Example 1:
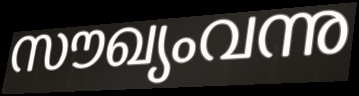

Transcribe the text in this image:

സൗഖ്യംവന്നു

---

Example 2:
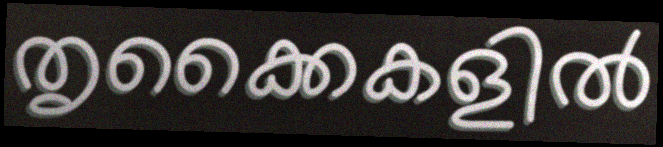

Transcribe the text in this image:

തൃക്കൈകളിൽ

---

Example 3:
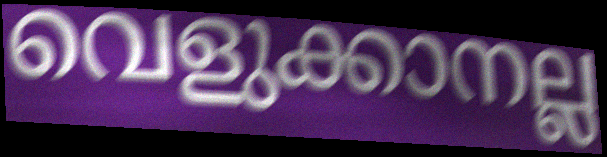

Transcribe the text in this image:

വെളുക്കാനല്ല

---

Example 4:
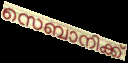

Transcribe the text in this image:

സെബാനിക്ക്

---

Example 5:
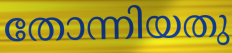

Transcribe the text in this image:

തോന്നിയതു